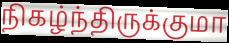
நிகழ்ந்திருக்குமா